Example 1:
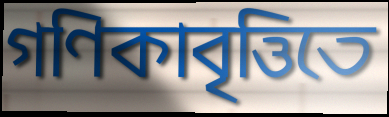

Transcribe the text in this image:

গণিকাবৃত্তিতে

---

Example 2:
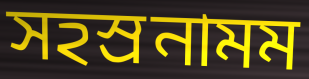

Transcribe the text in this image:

সহস্রনামম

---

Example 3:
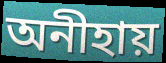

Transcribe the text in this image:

অনীহায়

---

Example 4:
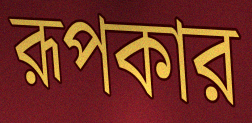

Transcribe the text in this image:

রূপকার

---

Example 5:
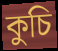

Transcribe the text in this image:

কুচি